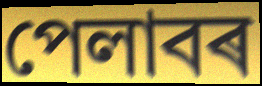
পেলাবৰ